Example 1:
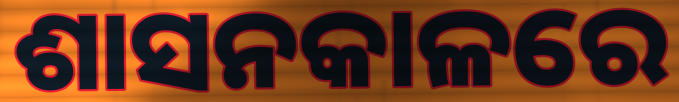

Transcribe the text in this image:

ଶାସନକାଳରେ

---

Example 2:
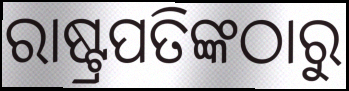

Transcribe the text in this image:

ରାଷ୍ଟ୍ରପତିଙ୍କଠାରୁ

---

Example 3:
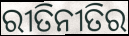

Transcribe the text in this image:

ରୀତିନୀତିର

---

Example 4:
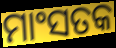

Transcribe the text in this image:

ମାଂସତକ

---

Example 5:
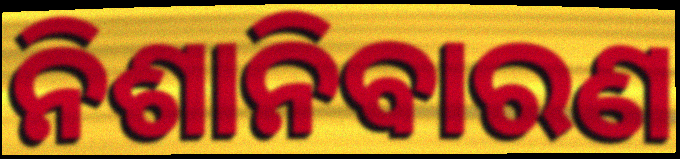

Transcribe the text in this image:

ନିଶାନିବାରଣ